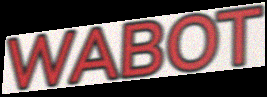
WABOT